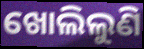
ଖୋଲିଲୁଣି